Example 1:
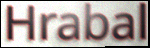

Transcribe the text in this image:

Hrabal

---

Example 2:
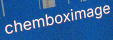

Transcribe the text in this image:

chemboximage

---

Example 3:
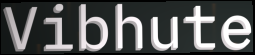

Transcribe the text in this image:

Vibhute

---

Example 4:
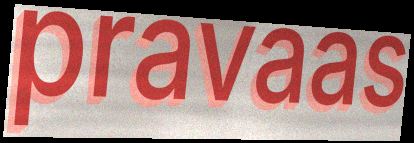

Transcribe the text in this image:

pravaas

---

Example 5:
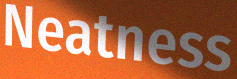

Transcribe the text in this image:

Neatness